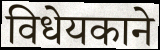
विधेयकाने